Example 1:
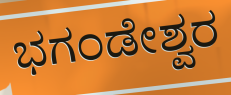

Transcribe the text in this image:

ಭಗಂಡೇಶ್ವರ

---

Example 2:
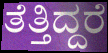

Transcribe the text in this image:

ತೆತ್ತಿದ್ದರೆ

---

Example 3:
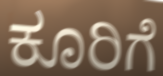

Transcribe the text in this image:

ಕೂರಿಗೆ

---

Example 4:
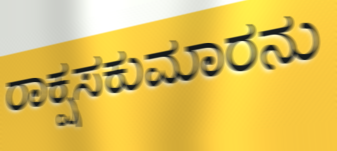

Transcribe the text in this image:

ರಾಕ್ಷಸಕುಮಾರನು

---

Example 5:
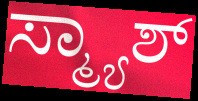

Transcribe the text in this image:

ಸ್ಮ್ಯಾಶ್